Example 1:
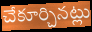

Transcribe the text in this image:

చేకూర్చినట్లు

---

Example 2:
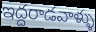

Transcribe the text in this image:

ఇద్దరాడవాళ్ళు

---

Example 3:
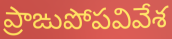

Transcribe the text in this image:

ప్రాఙుపోపవివేశ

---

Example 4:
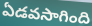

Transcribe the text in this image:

ఏడవసాగింది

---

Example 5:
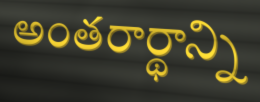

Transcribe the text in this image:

అంతరార్థాన్ని